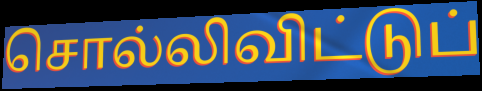
சொல்லிவிட்டுப்